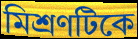
মিশ্রণটিকে